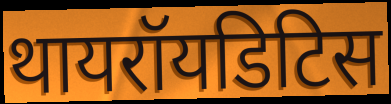
थायरॉयडिटिस